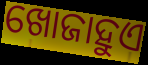
ଖୋଜାହୁଏ